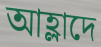
আহ্লাদে